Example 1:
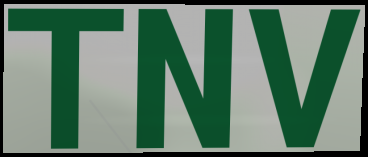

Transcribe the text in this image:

TNV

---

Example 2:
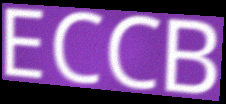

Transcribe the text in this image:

ECCB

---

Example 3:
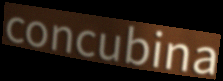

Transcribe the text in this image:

concubina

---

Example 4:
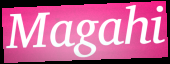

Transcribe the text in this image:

Magahi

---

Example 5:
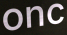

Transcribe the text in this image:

onc